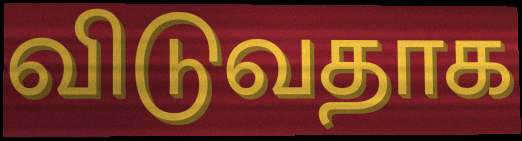
விடுவதாக